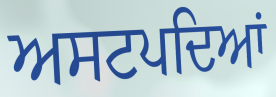
ਅਸਟਪਦਿਆਂ